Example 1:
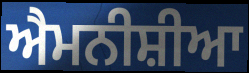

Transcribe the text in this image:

ਐਮਨੀਸ਼ੀਆ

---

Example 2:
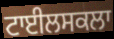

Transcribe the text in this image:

ਟਾਈਲਸਕਲਾ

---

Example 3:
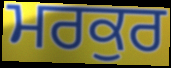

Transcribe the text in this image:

ਮਰਕੁਰ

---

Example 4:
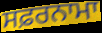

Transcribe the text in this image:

ਸਫ਼ਰਨਾਮਾ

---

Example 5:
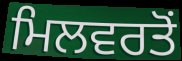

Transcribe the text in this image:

ਮਿਲਵਰਤੋਂ